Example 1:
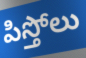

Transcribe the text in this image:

పిస్తోలు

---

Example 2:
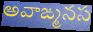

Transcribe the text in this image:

అవాఙ్మనస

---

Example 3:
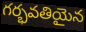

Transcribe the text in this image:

గర్భవతియైన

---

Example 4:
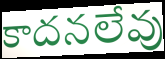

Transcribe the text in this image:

కాదనలేవు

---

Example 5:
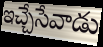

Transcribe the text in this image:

ఇచ్చేసేవాడు